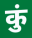
कुं